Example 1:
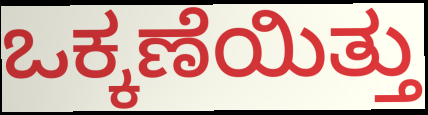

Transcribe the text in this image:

ಒಕ್ಕಣೆಯಿತ್ತು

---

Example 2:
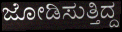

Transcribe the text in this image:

ಜೋಡಿಸುತ್ತಿದ್ದ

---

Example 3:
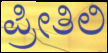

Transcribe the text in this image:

ಪ್ರೀತಿಲಿ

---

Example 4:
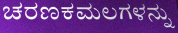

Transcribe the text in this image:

ಚರಣಕಮಲಗಳನ್ನು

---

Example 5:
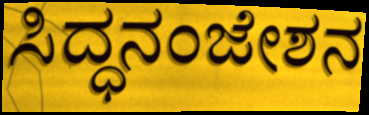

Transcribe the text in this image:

ಸಿದ್ಧನಂಜೇಶನ